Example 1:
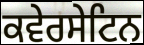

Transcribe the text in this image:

ਕਵੇਰਸੇਟਿਨ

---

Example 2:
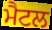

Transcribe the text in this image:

ਮੈਟਲ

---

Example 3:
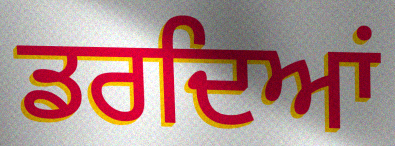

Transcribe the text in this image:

ਡਰਦਿਆਂ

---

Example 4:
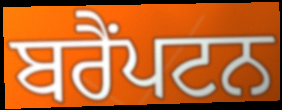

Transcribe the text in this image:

ਬਰੈੰਪਟਨ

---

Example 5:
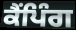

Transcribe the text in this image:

ਕੈਂਪਿੰਗ